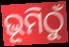
ଭୂମିଠୁଁ